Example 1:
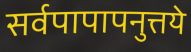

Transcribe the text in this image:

सर्वपापापनुत्तये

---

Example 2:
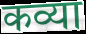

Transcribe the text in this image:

कव्या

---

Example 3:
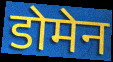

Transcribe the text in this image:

डोमेन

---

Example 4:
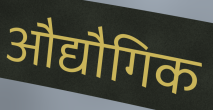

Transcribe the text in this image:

औद्यौगिक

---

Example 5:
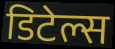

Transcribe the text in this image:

डिटेल्स